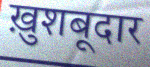
ख़ुशबूदार